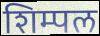
शिम्पल